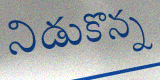
నిడుకొన్న